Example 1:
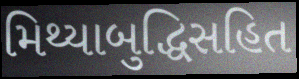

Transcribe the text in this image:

મિથ્યાબુદ્ધિસહિત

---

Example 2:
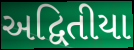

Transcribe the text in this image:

અદ્વિતીયા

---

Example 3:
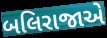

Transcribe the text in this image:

બલિરાજાએ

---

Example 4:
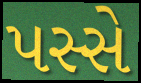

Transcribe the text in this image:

પસ્સે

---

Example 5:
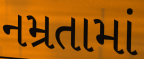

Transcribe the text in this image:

નમ્રતામાં